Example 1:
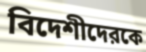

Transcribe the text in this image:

বিদেশীদেরকে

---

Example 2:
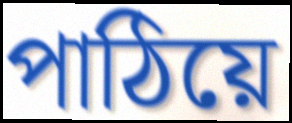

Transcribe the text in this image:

পাঠিয়ে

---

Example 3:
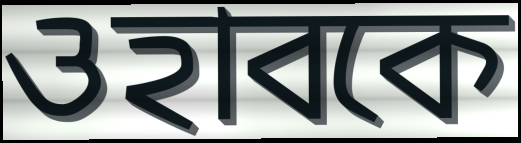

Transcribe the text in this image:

ওহাবকে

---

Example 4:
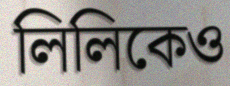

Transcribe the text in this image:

লিলিকেও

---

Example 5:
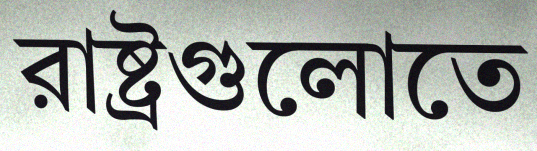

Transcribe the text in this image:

রাষ্ট্রগুলোতে